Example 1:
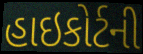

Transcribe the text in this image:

હાઇકોર્ટની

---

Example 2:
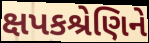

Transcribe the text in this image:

ક્ષપકશ્રેણિને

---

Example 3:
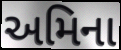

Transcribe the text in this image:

અમિના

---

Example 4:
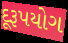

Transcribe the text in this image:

દૂરૂપયોગ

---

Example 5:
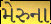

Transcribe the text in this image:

મેરુના